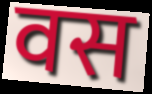
वस